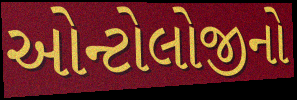
ઓન્ટોલોજીનો